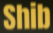
Shib